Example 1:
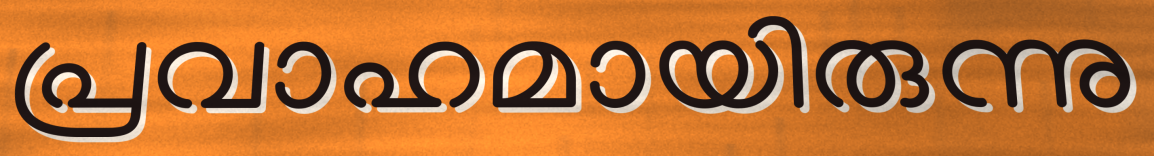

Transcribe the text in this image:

പ്രവാഹമായിരുന്നു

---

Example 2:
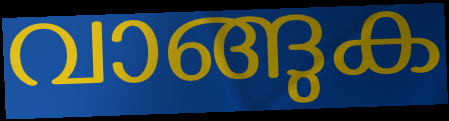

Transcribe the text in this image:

വാങ്ങുക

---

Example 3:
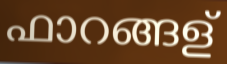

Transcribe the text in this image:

ഫാറങ്ങള്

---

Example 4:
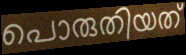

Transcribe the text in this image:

പൊരുതിയത്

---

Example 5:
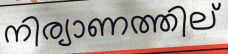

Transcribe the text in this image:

നിര്യാണത്തില്